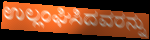
ಉಲ್ಲಂಘಿಸಿದವರನ್ನು